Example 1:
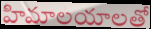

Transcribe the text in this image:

హిమాలయాలతో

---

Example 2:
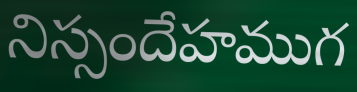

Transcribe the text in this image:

నిస్సందేహముగ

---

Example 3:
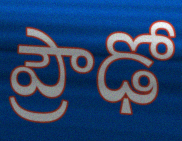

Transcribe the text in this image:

ప్రౌఢో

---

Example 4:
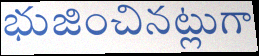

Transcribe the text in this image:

భుజించినట్లుగా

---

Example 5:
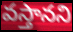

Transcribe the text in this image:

వస్తానని